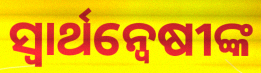
ସ୍ୱାର୍ଥନ୍ୱେଷୀଙ୍କ